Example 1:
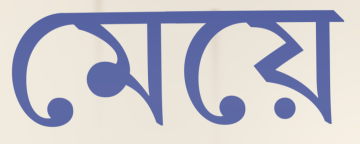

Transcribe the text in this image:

মেয়ে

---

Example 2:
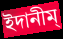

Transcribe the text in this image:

ইদানীম্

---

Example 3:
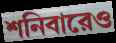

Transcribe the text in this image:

শনিবারেও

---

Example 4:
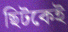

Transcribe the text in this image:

ছিটকেই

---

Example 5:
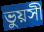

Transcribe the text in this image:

ভুয়সী